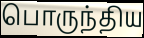
பொருந்திய